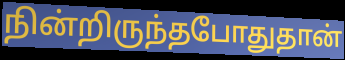
நின்றிருந்தபோதுதான்